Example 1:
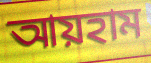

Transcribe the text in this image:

আয়হাম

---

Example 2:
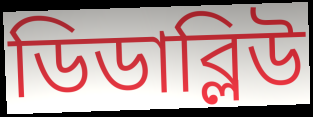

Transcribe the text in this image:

ডিডাব্লিউ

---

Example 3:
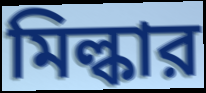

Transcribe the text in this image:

মিল্কার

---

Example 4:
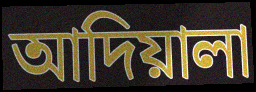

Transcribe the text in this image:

আদিয়ালা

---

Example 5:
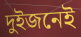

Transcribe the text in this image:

দুইজনেই